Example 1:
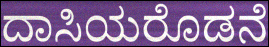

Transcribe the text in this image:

ದಾಸಿಯರೊಡನೆ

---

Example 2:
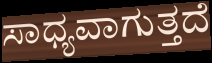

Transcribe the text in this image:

ಸಾಧ್ಯವಾಗುತ್ತದೆ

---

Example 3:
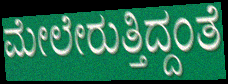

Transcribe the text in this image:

ಮೇಲೇರುತ್ತಿದ್ದಂತೆ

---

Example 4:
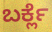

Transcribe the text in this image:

ಬರ್ಕ್ಲೆ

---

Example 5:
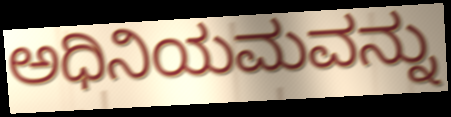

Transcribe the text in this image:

ಅಧಿನಿಯಮವನ್ನು